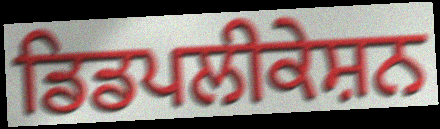
ਡਿਡਪਲੀਕੇਸ਼ਨ